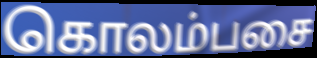
கொலம்பசை